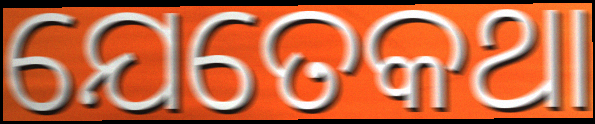
ଯେତେକଥା